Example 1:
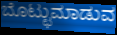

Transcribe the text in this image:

ಬೊಟ್ಟುಮಾಡುವ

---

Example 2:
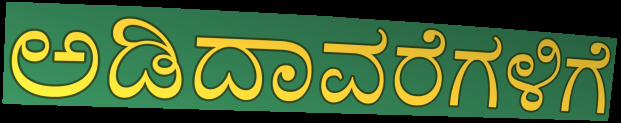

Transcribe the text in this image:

ಅಡಿದಾವರೆಗಳಿಗೆ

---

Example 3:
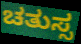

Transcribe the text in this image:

ಚತುಸ್ಸ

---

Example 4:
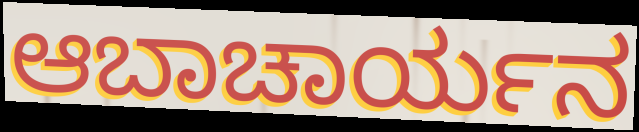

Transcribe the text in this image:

ಆಬಾಚಾರ್ಯನ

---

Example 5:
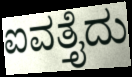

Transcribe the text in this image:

ಐವತ್ತೈದು